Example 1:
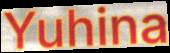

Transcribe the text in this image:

Yuhina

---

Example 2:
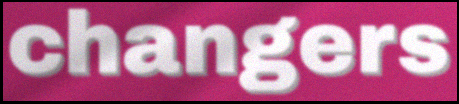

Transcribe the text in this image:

changers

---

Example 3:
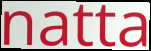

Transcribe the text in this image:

natta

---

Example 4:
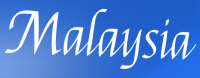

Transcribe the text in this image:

Malaysia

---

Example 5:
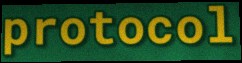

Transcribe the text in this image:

protocol